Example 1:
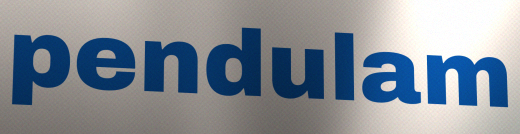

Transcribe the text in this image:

pendulam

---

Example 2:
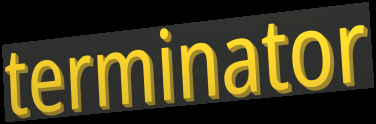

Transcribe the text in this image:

terminator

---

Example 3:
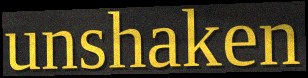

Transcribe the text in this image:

unshaken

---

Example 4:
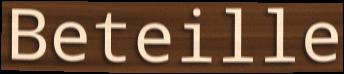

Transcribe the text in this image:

Beteille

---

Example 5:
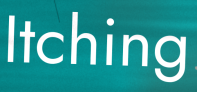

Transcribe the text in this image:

Itching